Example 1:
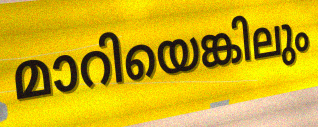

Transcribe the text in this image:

മാറിയെങ്കിലും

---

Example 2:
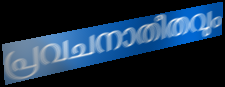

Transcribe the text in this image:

പ്രവചനാതീതവും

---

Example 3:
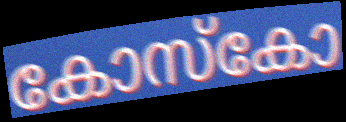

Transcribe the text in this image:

കോസ്കോ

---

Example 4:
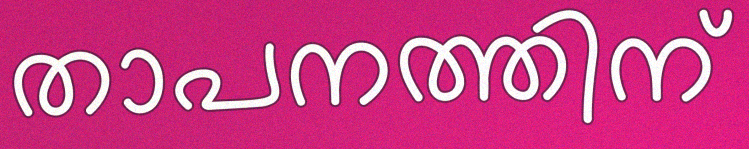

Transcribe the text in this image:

താപനത്തിന്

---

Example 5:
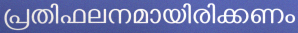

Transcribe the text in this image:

പ്രതിഫലനമായിരിക്കണം